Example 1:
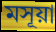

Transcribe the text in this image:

মসূয়া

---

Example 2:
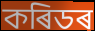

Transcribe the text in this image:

কৰিডৰ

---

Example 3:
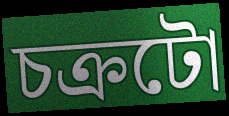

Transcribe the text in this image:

চক্ৰটো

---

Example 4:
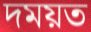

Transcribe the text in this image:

দময়ত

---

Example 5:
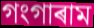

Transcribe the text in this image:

গংগাৰাম